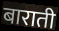
बाराती